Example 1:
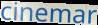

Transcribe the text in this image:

cinemar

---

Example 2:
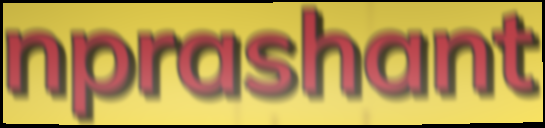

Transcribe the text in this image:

nprashant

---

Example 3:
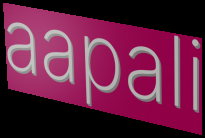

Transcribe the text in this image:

aapali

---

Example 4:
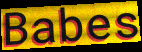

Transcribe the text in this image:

Babes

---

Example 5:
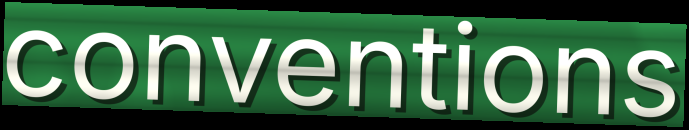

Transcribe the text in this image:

conventions